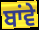
ਬਾਂਵੇ